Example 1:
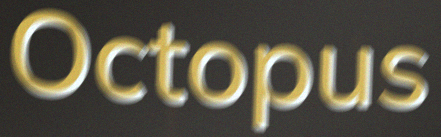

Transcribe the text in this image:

Octopus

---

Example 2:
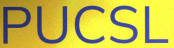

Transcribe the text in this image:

PUCSL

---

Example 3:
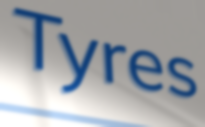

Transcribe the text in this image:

Tyres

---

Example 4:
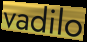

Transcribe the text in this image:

vadilo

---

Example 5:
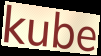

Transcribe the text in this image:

kube